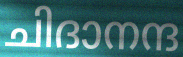
ചിദാനന്ദ